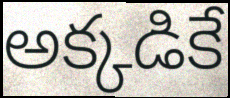
అక్కడికే